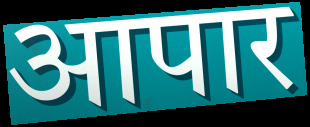
आपार